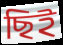
ছিই